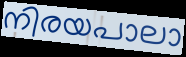
നിരയപാലാ